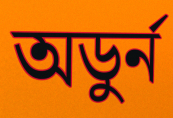
অডুর্ন